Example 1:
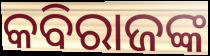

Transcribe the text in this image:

କବିରାଜଙ୍କ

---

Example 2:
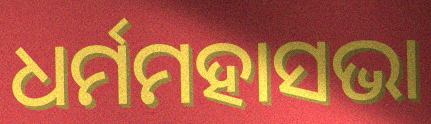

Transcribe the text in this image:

ଧର୍ମମହାସଭା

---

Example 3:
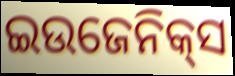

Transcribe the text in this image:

ଇଉଜେନିକ୍‌ସ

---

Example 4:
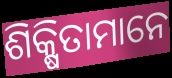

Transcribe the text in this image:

ଶିକ୍ଷିତାମାନେ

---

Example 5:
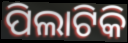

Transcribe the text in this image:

ପିଲାଟିକି